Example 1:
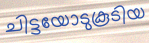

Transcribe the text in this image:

ചിട്ടയോടുകൂടിയ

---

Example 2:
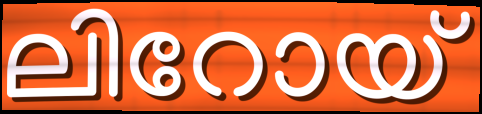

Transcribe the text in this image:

ലിറോയ്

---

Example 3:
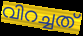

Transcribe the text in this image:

വിറച്ചത്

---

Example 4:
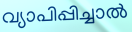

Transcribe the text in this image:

വ്യാപിപ്പിച്ചാൽ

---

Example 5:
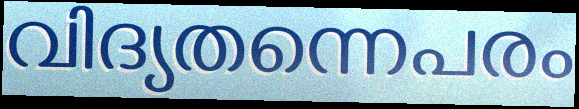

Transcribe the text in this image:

വിദ്യതന്നെപരം